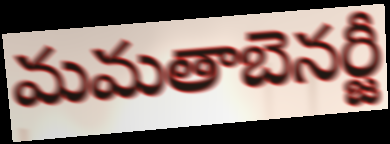
మమతాబెనర్జీ